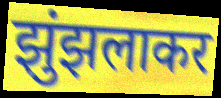
झुंझलाकर